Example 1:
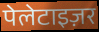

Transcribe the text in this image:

पेलेटाइज़र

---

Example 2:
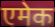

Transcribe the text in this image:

एमेक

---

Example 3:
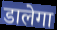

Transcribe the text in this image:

डालेगा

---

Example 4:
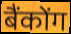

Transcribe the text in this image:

बैंकोंग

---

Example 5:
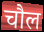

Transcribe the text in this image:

चौल